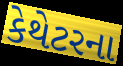
કેથેટરના